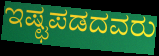
ಇಷ್ಟಪಡದವರು